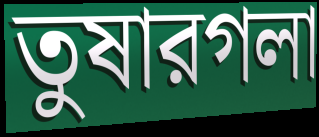
তুষারগলা